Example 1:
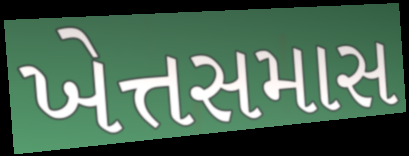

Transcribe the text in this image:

ખેત્તસમાસ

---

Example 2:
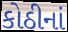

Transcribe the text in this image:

કોઠીનાં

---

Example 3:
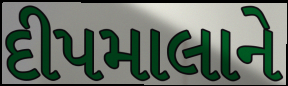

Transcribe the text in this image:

દીપમાલાને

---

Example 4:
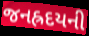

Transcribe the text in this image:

જનહ્રદયની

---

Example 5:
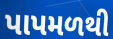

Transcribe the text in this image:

પાપમળથી